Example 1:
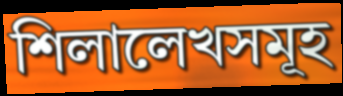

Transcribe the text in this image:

শিলালেখসমূহ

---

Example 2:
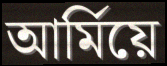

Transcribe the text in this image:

আৰ্মিয়ে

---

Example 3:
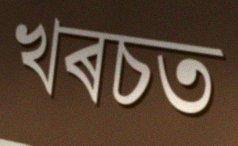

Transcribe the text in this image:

খৰচত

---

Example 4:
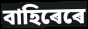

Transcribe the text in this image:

বাহিৰেৰে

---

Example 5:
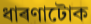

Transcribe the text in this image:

ধাৰণাটোক